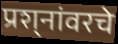
प्रश्नांवरचे